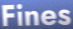
Fines